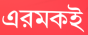
এরমকই